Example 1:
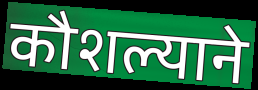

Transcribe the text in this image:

कौशल्याने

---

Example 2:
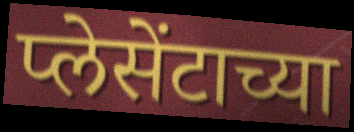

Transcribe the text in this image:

प्लेसेंटाच्या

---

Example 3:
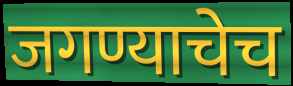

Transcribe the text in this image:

जगण्याचेच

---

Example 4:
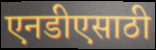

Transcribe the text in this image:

एनडीएसाठी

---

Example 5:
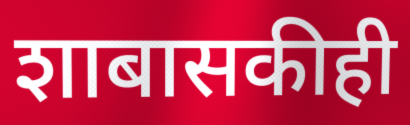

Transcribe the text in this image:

शाबासकीही